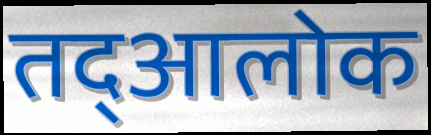
तद्आलोक